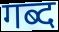
गब्द